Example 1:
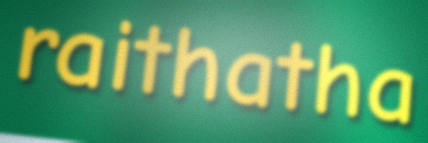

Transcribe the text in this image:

raithatha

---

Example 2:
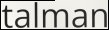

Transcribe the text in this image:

talman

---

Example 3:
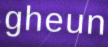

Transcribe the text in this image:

gheun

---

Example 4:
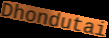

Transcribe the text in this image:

Dhondutai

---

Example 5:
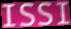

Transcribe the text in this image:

ISSI